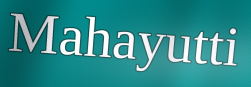
Mahayutti